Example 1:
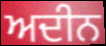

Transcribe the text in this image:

ਅਦੀਨ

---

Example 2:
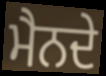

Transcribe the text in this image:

ਮੈਨਦੇ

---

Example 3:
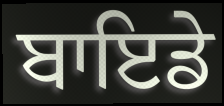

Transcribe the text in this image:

ਬਾਇਡੇ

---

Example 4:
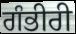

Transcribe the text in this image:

ਗੰਭੀਰੀ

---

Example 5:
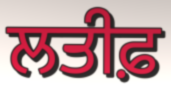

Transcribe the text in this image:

ਲਤੀਫ਼